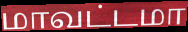
மாவட்டமா